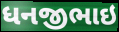
ધનજીભાઇ